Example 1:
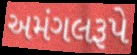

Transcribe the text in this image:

અમંગલરૂપે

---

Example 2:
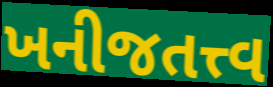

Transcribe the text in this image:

ખનીજતત્ત્વ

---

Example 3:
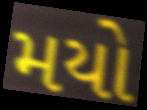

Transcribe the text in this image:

મયો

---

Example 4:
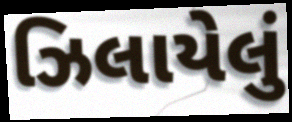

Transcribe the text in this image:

ઝિલાયેલું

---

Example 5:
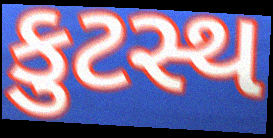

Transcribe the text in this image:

કુટસ્થ